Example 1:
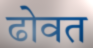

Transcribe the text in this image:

ढोवत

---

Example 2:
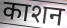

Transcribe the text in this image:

काशन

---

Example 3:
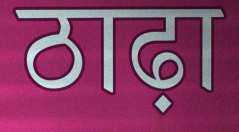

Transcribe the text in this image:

ठाढ़ा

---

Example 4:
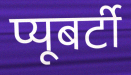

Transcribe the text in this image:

प्‍यूबर्टी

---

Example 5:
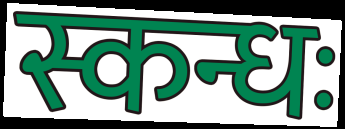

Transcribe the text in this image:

स्कन्धः